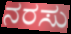
ನರಸು